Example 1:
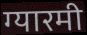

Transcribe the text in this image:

ग्यारमी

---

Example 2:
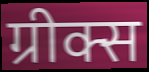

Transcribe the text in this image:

ग्रीक्स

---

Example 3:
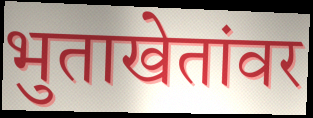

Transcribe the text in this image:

भुताखेतांवर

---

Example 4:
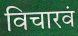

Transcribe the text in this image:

विचारवं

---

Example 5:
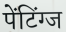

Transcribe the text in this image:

पेंटिंग्ज